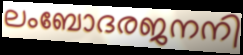
ലംബോദരജനനി